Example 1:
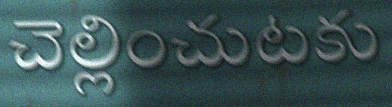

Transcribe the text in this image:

చెల్లించుటకు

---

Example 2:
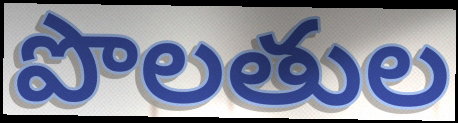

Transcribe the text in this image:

పొలతుల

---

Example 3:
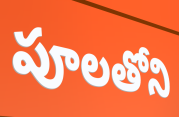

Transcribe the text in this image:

పూలతోని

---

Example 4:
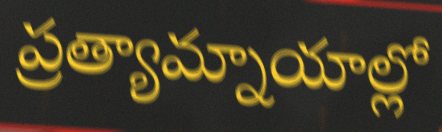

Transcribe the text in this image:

ప్రత్యామ్నాయాల్లో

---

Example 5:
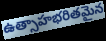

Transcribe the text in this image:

ఉత్సాహభరితమైన